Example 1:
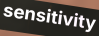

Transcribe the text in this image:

sensitivity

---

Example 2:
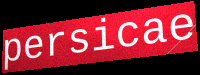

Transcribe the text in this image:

persicae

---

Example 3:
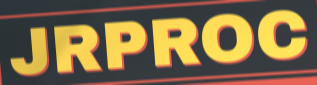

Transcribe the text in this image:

JRPROC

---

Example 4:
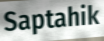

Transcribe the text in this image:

Saptahik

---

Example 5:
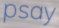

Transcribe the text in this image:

psay